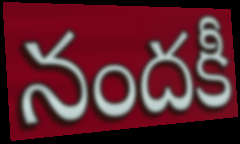
నందకీ